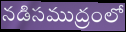
నడిసముద్రంలో